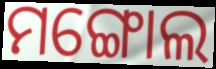
ମଙ୍ଗୋଲ